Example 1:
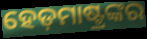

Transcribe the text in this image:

ହେଡ଼ମାଷ୍ଟ୍ରଙ୍କର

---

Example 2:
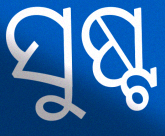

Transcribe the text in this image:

ସୁଷ୍ଟ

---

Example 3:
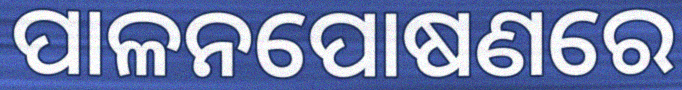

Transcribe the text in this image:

ପାଳନପୋଷଣରେ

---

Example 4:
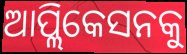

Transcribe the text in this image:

ଆପ୍ଲିକେସନକୁ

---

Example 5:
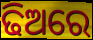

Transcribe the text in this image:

ଢିଅରେ